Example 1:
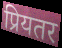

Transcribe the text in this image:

प्रियतर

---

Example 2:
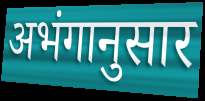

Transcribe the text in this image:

अभंगानुसार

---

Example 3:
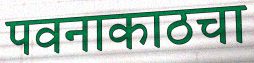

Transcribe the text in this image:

पवनाकाठचा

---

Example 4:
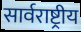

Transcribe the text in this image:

सार्वराष्ट्रीय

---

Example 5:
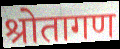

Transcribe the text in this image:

श्रोतागण